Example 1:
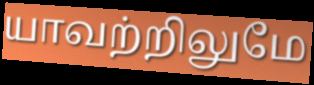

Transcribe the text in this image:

யாவற்றிலுமே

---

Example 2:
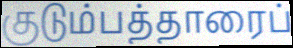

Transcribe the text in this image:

குடும்பத்தாரைப்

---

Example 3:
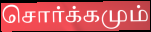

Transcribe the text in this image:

சொர்க்கமும்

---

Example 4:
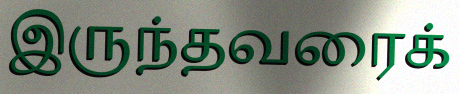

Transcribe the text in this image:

இருந்தவரைக்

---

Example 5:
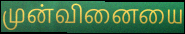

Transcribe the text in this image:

முன்வினையை